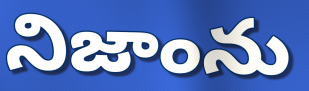
నిజాంను